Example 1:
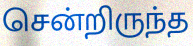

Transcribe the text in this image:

சென்றிருந்த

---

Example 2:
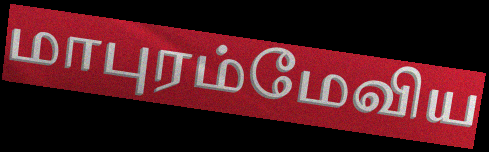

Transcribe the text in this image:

மாபுரம்மேவிய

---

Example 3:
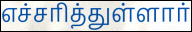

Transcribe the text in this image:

எச்சரித்துள்ளார்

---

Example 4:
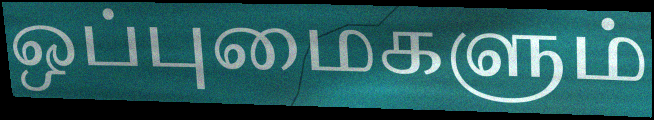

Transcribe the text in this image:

ஒப்புமைகளும்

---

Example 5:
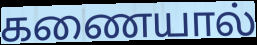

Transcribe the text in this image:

கணையால்